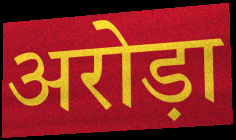
अरोड़ा